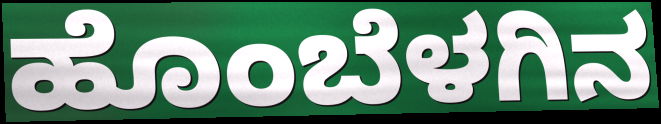
ಹೊಂಬೆಳಗಿನ